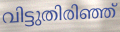
വിട്ടുതിരിഞ്ഞ്